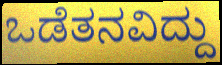
ಒಡೆತನವಿದ್ದು